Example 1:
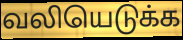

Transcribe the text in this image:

வலியெடுக்க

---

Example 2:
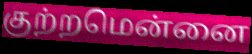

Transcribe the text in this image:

குற்றமென்னை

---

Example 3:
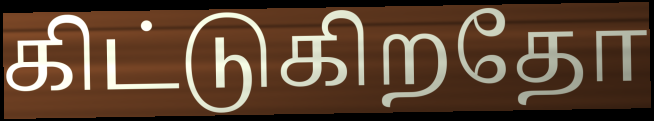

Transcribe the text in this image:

கிட்டுகிறதோ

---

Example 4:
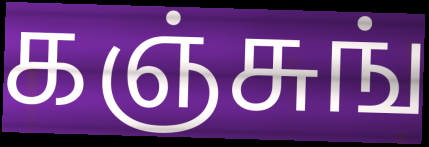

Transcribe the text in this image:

கஞ்சுங்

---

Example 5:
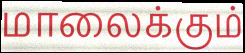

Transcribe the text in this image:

மாலைக்கும்